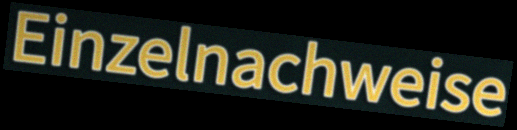
Einzelnachweise